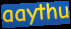
aaythu